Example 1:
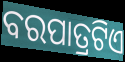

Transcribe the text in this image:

ବରପାତ୍ରଟିଏ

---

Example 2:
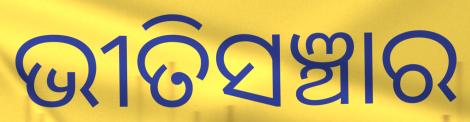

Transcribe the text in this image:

ଭୀତିସଞ୍ଚାର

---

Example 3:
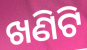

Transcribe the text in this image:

ଖଣିଟି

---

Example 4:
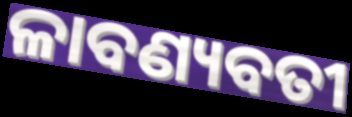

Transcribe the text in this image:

ଳାବଣ୍ୟବତୀ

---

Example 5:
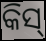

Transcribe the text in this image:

କିସ୍